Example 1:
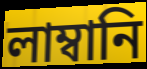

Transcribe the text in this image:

লাম্বানি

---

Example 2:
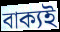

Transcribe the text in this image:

বাক্যই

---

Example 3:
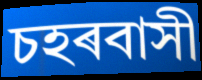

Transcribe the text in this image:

চহৰবাসী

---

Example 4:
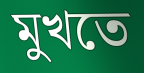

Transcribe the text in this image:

মুখতে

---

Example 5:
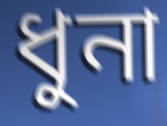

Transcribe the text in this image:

ধুনা